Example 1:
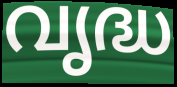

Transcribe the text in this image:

വൃദ്ധ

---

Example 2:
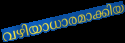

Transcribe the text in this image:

വഴിയാധാരമാക്കിയ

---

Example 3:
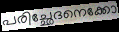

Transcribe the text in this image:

പരിച്ഛേദനെക്കോ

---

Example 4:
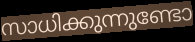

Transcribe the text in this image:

സാധിക്കുന്നുണ്ടോ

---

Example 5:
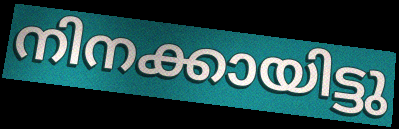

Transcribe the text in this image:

നിനക്കായിട്ടു